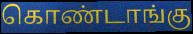
கொண்டாங்கு